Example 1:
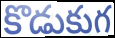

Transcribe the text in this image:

కొడుకుగ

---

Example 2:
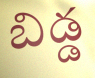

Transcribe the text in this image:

బిడ్డ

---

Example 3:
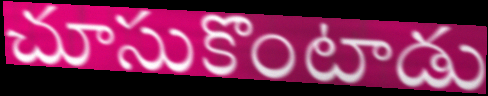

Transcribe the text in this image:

చూసుకొంటాడు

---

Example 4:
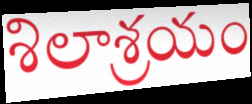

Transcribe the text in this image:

శిలాశ్రయం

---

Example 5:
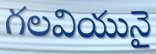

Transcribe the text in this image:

గలవియునై